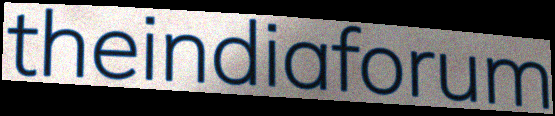
theindiaforum